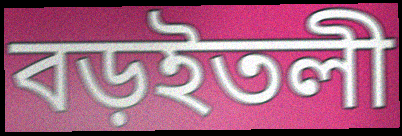
বড়ইতলী